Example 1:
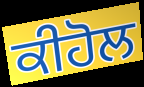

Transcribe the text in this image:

ਕੀਹੋਲ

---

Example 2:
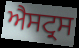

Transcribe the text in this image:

ਐਸਟ੍ਰਸ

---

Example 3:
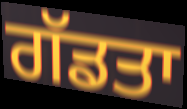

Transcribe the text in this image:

ਗੱਡਤਾ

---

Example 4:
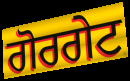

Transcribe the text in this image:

ਗੋਰਗੇਟ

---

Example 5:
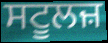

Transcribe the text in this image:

ਸਟੂਲਜ਼